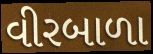
વીરબાળા